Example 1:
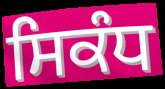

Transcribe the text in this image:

ਸਿਕੰਧ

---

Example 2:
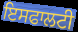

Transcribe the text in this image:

ਇਸਫਾਲਟੀ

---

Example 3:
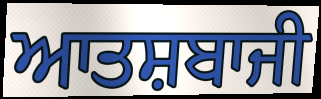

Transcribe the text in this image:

ਆਤਸ਼ਬਾਜੀ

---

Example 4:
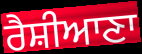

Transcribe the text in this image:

ਰੈਸ਼ੀਆਣਾ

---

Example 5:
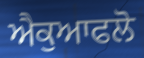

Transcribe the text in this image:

ਐਕੁਆਫਲੋ